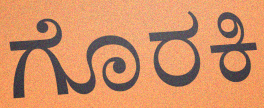
ಗೊರಕಿ